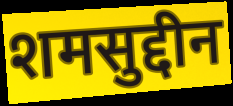
शमसुद्दीन